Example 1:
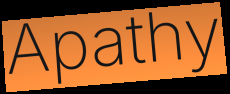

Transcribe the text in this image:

Apathy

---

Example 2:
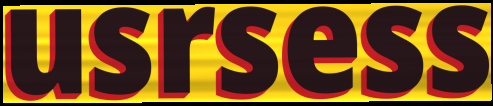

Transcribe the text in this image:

usrsess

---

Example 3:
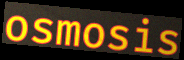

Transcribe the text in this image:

osmosis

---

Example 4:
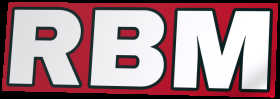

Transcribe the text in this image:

RBM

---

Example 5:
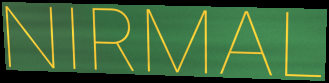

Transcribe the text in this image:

NIRMAL